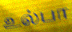
உல்பா